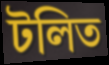
টলিত